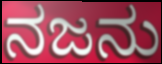
ನಜನು